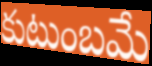
కుటుంబమే